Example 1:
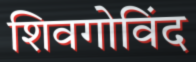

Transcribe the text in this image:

शिवगोविंद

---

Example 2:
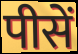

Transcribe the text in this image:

पीसें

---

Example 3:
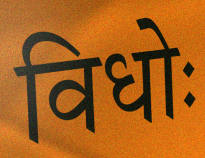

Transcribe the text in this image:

विधोः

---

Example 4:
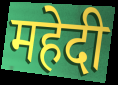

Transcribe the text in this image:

महेदी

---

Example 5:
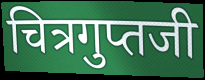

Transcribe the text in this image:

चित्रगुप्तजी